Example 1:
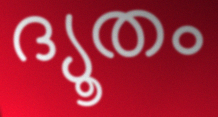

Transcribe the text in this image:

ദ്യൂതം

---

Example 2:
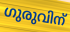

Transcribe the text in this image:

ഗുരുവിന്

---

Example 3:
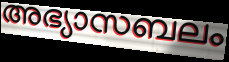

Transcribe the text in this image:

അഭ്യാസബലം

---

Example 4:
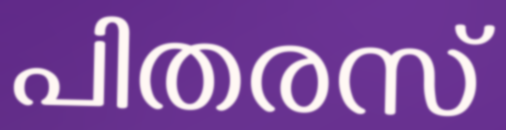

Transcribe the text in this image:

പിതരസ്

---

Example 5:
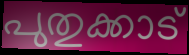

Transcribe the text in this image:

പുതുക്കാട്